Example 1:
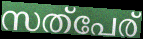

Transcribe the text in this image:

സത്പേര്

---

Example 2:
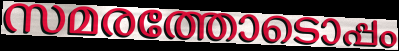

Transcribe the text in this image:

സമരത്തോടൊപ്പം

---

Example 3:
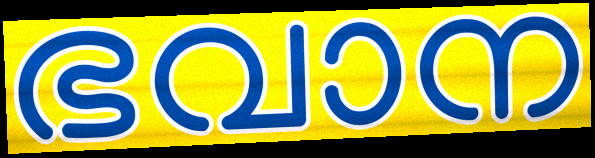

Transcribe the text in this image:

ഭവാന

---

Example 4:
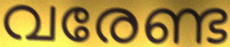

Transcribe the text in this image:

വരേണ്ട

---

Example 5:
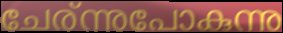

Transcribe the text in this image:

ചേര്ന്നുപോകുന്നു